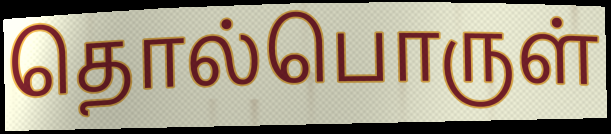
தொல்பொருள்